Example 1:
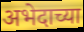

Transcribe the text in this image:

अभेदाच्या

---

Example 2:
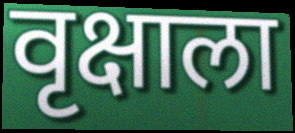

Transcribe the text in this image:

वृक्षाला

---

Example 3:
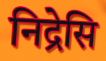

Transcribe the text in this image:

निद्रेसि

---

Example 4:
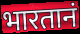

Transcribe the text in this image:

भारतानं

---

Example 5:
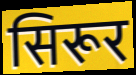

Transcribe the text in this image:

सिरूर